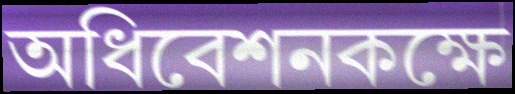
অধিবেশনকক্ষে